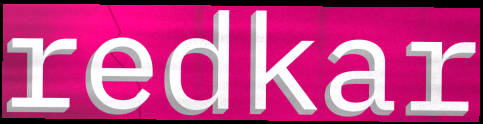
redkar